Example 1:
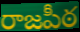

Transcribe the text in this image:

రాజపీఠ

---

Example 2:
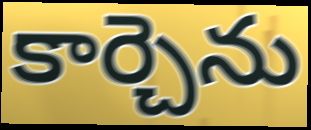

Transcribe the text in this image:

కార్చెను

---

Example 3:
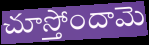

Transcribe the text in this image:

చూస్తోందామె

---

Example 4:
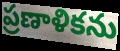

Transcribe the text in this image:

ప్రణాళికను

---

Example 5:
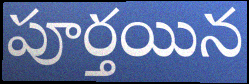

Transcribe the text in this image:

పూర్తయిన